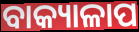
ବାକ୍ୟାଳାପ